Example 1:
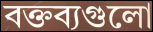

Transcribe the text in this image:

বক্তব্যগুলো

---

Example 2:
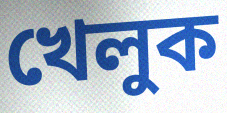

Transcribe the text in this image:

খেলুক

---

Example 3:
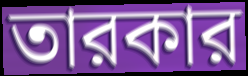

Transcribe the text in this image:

তারকার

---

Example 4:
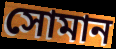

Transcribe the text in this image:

সোমান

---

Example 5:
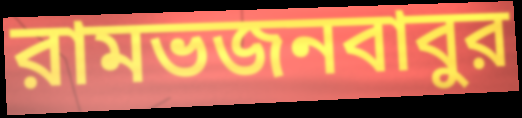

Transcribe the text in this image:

রামভজনবাবুর